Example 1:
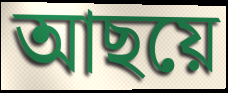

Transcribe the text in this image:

আছয়ে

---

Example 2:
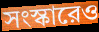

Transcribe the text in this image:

সংস্কারেও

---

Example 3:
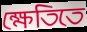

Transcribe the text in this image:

ক্ষেতিতে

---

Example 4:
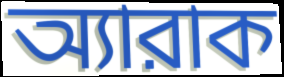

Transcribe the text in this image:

অ্যারাক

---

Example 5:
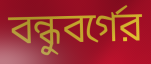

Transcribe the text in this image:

বন্ধুবর্গের